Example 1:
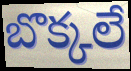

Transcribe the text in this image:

బొక్కలే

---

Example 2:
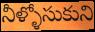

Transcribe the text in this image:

నీళ్ళోసుకుని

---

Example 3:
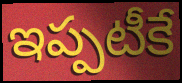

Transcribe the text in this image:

ఇప్పటీకే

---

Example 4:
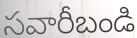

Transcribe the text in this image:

సవారీబండి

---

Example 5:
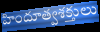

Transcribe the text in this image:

హిందూత్వశక్తులు